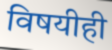
विषयीही